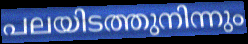
പലയിടത്തുനിന്നും